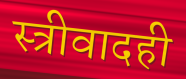
स्त्रीवादही